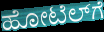
ಹೋಟೆಲ್‌ಗೆ